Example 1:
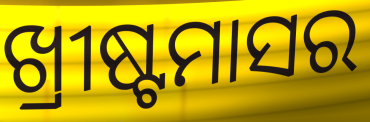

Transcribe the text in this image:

ଖ୍ରୀଷ୍ଟମାସର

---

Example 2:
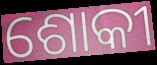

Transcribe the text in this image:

ଶୋକୀ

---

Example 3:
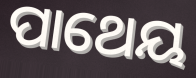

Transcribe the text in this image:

ପାଥେୟ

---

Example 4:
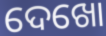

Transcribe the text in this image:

ଦେଖୋ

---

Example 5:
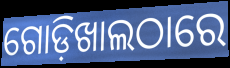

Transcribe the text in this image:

ଗୋଡ଼ିଖାଲଠାରେ